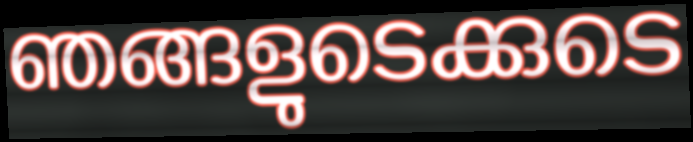
ഞങ്ങളുടെക്കുടെ